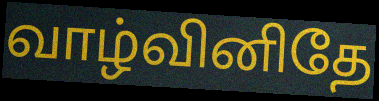
வாழ்வினிதே